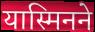
यास्मिनने